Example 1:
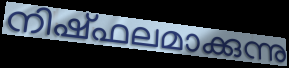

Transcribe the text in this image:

നിഷ്ഫലമാക്കുന്നു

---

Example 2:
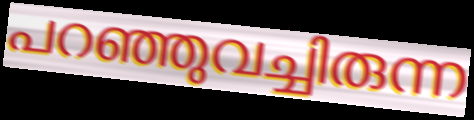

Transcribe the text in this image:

പറഞ്ഞുവച്ചിരുന്ന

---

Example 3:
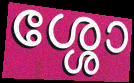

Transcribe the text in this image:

ശ്ശോ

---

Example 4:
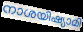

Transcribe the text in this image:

നാശയിഷ്യാമി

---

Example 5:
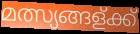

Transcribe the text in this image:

മത്സ്യങ്ങള്ക്ക്